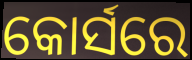
କୋର୍ସରେ